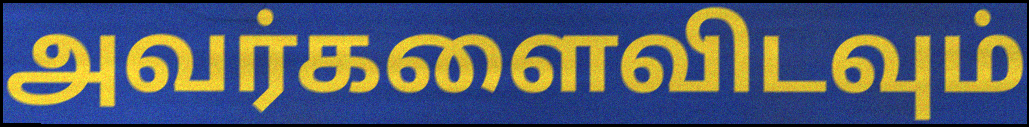
அவர்களைவிடவும்